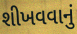
શીખવવાનું